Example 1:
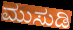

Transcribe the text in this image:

ಮುಸುಡಿ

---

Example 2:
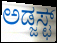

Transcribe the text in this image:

ಅಡ್ಜಸ್ಟ್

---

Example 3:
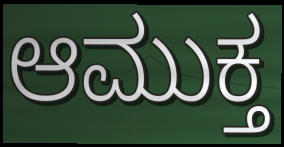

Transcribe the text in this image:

ಆಮುಕ್ತ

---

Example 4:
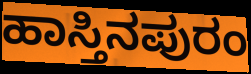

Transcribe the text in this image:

ಹಾಸ್ತಿನಪುರಂ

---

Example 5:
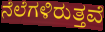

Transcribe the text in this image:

ನೆಲೆಗಳಿರುತ್ತವೆ